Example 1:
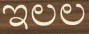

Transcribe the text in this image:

ಇಲಲ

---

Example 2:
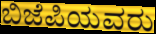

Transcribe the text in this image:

ಬಿಜೆಪಿಯವರು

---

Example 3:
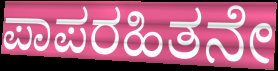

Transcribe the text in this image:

ಪಾಪರಹಿತನೇ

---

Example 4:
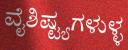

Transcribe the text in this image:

ವೈಶಿಷ್ಟ್ಯಗಳುಳ್ಳ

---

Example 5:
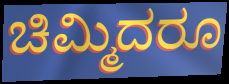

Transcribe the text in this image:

ಚಿಮ್ಮಿದರೂ